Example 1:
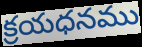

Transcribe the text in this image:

క్రయధనము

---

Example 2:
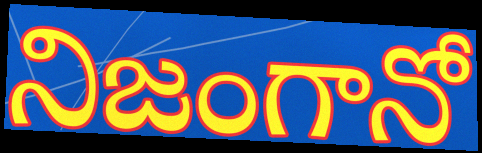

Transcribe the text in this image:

నిజంగానో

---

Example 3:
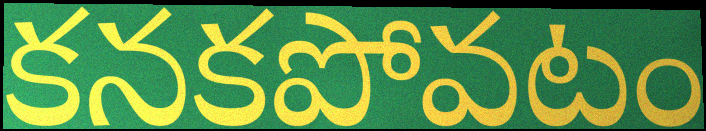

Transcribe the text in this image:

కనకపోవటం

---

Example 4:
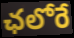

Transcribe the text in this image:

ఛలోరే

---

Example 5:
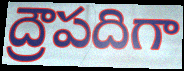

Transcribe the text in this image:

ద్రౌపదిగా